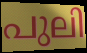
പുലി